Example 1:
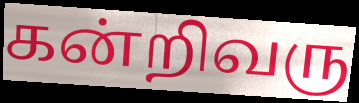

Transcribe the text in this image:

கன்றிவரு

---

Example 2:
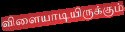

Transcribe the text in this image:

விளையாடியிருக்கும்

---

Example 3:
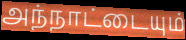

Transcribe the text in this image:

அந்நாட்டையும்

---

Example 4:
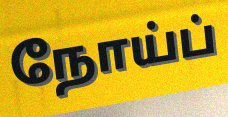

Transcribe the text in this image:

நோய்ப்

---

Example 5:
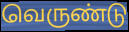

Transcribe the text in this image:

வெருண்டு